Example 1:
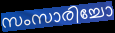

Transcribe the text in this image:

സംസാരിച്ചോ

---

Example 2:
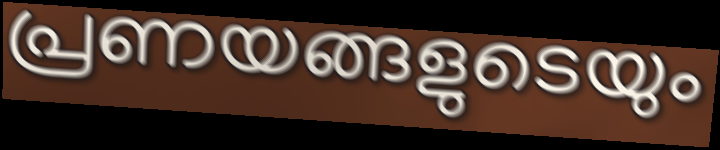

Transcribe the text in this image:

പ്രണയങ്ങളുടെയും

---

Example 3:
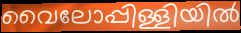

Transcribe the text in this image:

വൈലോപ്പിള്ളിയിൽ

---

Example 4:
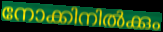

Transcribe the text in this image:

നോക്കിനിൽക്കും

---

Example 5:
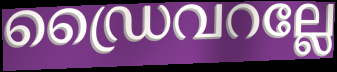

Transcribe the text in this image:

ഡ്രൈവറല്ലേ